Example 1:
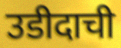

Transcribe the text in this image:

उडीदाची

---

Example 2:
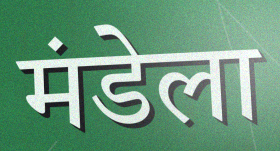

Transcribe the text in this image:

मंडेला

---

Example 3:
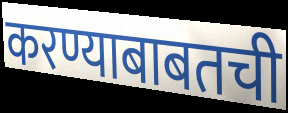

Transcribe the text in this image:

करण्याबाबतची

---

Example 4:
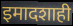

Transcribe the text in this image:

इमादशाही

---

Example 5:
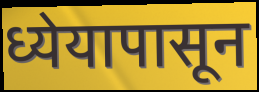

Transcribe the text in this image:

ध्येयापासून